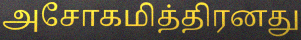
அசோகமித்திரனது